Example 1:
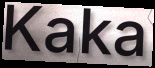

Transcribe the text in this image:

Kaka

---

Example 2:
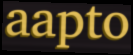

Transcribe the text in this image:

aapto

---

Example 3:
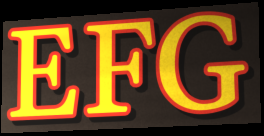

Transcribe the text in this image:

EFG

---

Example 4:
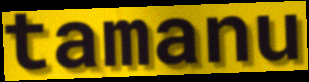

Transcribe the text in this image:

tamanu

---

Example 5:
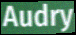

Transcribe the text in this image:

Audry